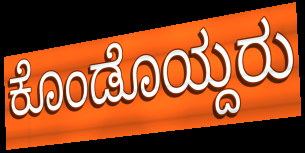
ಕೊಂಡೊಯ್ದರು